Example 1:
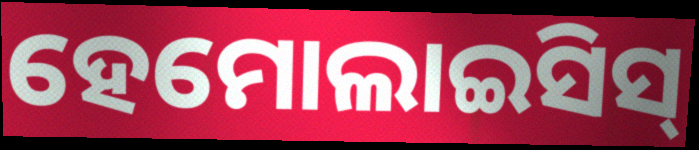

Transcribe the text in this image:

ହେମୋଲାଇସିସ୍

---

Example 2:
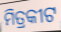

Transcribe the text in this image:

ମିତ୍ରକୀଟ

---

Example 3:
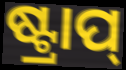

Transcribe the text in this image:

ଷ୍ଟ୍ରାପ୍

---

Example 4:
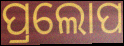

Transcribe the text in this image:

ପ୍ରଲୋପ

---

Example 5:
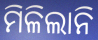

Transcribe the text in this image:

ମିଳିଲାନି